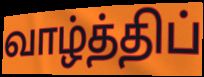
வாழ்த்திப்